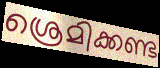
ശ്രെമിക്കണ്ട